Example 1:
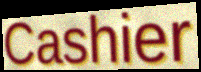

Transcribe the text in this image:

Cashier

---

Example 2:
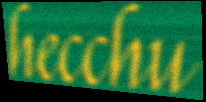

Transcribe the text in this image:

hecchu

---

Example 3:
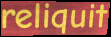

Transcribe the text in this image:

reliquit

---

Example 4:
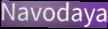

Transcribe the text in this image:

Navodaya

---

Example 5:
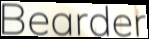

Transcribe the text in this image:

Bearder